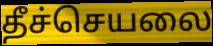
தீச்செயலை